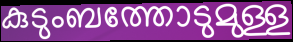
കുടുംബത്തോടുമുള്ള